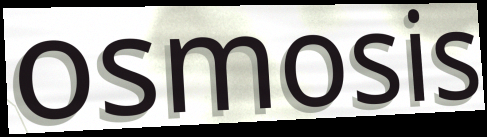
osmosis